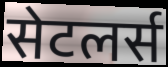
सेटलर्स